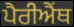
ਪੈਰੀਐਂਥ